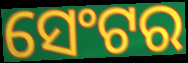
ସେଂଟର